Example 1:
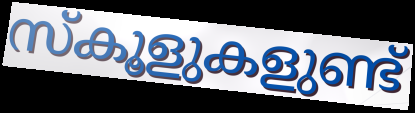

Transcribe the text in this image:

സ്കൂളുകളുണ്ട്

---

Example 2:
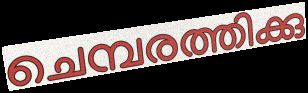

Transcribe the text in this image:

ചെമ്പരത്തിക്കു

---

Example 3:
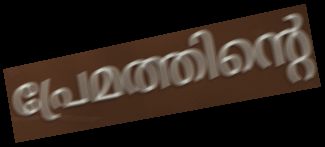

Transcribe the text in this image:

പ്രേമത്തിന്റെ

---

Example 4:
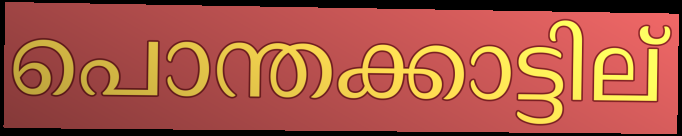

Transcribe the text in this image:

പൊന്തക്കാട്ടില്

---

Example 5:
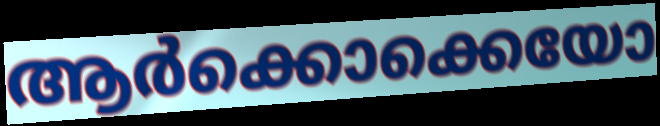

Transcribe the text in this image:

ആർക്കൊക്കെയോ